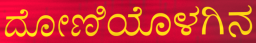
ದೋಣಿಯೊಳಗಿನ